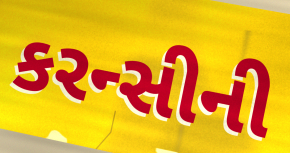
કરન્સીની